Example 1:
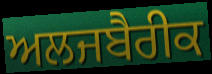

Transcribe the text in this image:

ਅਲਜਬੈਰੀਕ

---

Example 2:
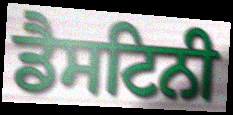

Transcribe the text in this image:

ਡੈਸਟਿਨੀ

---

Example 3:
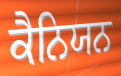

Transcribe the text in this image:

ਕੈਨਿਯਨ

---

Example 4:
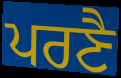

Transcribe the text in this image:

ਪਰਣੈ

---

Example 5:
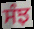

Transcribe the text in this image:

ਸੰਝ